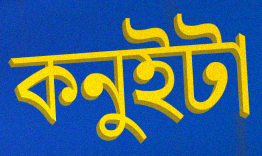
কনুইটা